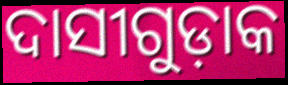
ଦାସୀଗୁଡ଼ାକ